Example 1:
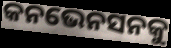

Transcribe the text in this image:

କନଭେନସନକୁ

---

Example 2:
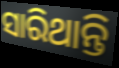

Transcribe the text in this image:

ସାରିଥାନ୍ତି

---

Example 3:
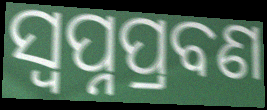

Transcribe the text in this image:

ସ୍ଵପ୍ନପ୍ରବଣ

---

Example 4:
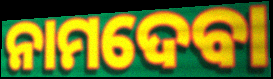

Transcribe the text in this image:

ନାମଦେବା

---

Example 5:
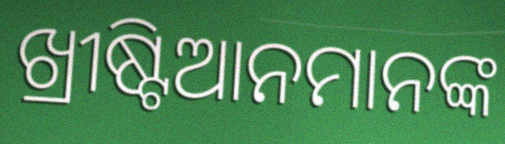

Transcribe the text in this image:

ଖ୍ରୀଷ୍ଟିଆନମାନଙ୍କ